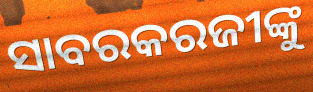
ସାବରକରଜୀଙ୍କୁ